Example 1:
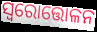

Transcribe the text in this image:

ସ୍ବରୋତ୍ତୋଳନ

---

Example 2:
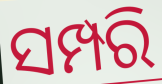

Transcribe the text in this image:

ସମ୍ପରି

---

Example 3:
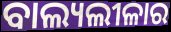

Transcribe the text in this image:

ବାଲ୍ୟଲୀଳାର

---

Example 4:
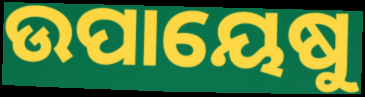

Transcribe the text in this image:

ଉପାୟେଷୁ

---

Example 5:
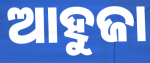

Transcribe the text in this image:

ଆହୁଜା